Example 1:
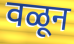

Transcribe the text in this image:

वळून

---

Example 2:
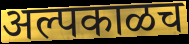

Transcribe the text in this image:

अल्पकाळच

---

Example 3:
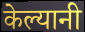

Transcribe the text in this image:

केल्यानी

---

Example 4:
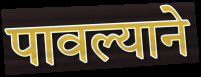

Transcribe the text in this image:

पावल्याने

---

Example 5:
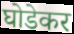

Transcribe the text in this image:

घोडेकर